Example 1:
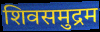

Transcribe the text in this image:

शिवसमुद्रम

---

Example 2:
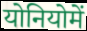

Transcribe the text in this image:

योनियोमें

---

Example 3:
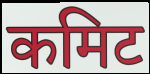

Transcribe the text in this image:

कमिट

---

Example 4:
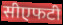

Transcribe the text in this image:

सीएफटी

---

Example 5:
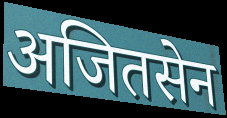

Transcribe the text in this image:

अजितसेन